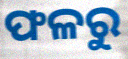
ଫଳରୁ